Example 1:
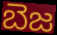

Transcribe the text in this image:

బెజ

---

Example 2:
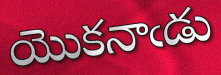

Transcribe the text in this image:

యొకనాఁడు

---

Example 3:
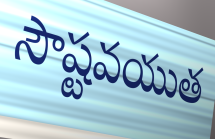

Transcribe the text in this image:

సౌష్టవయుత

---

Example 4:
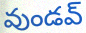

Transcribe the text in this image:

వుండవ్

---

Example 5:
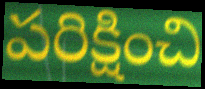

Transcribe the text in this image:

పరిక్షించి